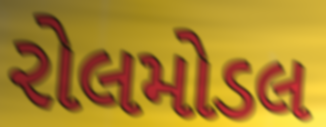
રોલમોડલ